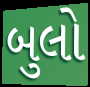
બુલો